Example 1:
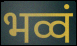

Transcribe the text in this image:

भव्वं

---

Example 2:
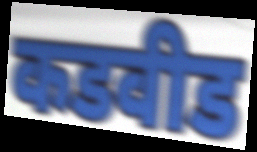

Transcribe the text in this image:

कडवीड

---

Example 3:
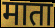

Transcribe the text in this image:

माता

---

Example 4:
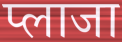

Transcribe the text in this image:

प्लाजा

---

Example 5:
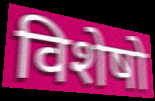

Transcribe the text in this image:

विशेषो